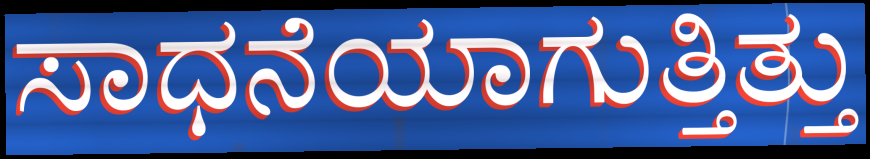
ಸಾಧನೆಯಾಗುತ್ತಿತ್ತು